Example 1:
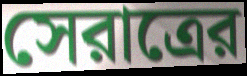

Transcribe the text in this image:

সেরাত্রের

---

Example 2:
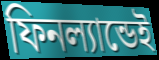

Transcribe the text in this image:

ফিনল্যান্ডেই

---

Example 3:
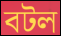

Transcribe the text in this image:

বটল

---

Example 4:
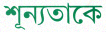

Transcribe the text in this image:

শূন্যতাকে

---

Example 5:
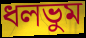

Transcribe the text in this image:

ধলভুম